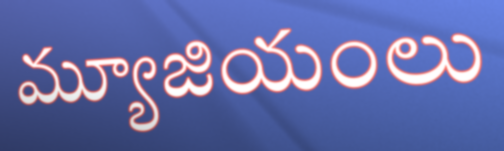
మ్యూజియంలు